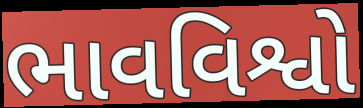
ભાવવિશ્વો